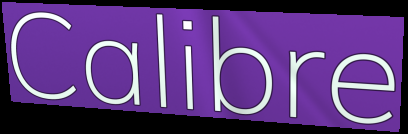
Calibre